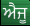
ਐਜੂ